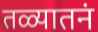
तळ्यातनं